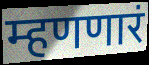
म्हणणारं